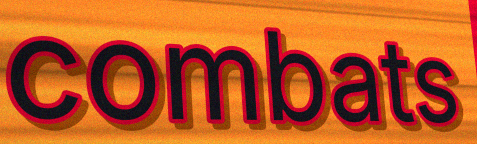
combats